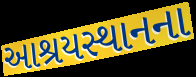
આશ્રયસ્થાનના